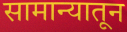
सामान्यातून